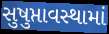
સુષુપ્તાવસ્થામાં